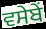
ਵਸੇਬੇਂ